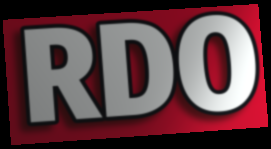
RDO